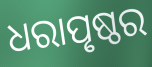
ଧରାପୃଷ୍ଠର